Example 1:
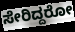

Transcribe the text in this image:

ಸೇರಿದ್ದರೋ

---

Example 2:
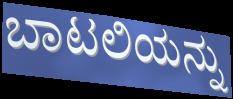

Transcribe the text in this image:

ಬಾಟಲಿಯನ್ನು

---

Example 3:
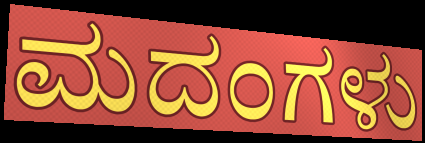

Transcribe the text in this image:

ಮದಂಗಳು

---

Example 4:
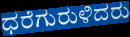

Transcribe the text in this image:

ಧರೆಗುರುಳಿದರು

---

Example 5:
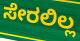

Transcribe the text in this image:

ಸೇರಲಿಲ್ಲ